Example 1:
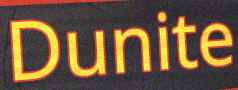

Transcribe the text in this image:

Dunite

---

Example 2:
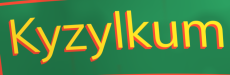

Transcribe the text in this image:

Kyzylkum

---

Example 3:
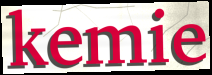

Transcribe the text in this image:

kemie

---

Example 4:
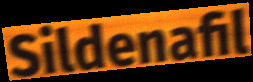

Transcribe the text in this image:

Sildenafil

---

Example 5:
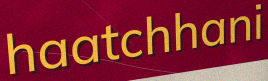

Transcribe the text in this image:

haatchhani